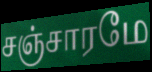
சஞ்சாரமே